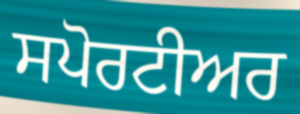
ਸਪੋਰਟੀਅਰ